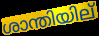
ശാന്തിയില്